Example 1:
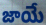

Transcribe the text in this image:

జాయే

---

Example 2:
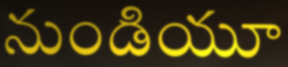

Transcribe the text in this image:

నుండియూ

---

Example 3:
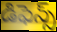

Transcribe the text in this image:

డిఫెన్స్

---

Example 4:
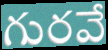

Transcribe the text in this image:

గురవే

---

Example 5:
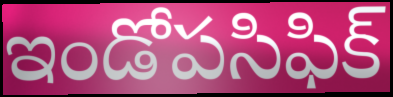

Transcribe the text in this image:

ఇండోపసిఫిక్